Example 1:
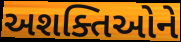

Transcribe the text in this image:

અશક્તિઓને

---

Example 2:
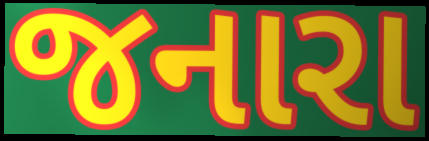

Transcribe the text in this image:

જનારા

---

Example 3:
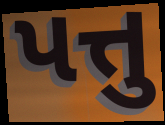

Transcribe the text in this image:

પત્તુ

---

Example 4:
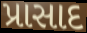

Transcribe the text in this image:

પ્રાસાદ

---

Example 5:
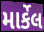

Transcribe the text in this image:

માર્કેલ